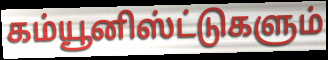
கம்யூனிஸ்ட்டுகளும்